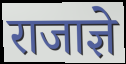
राजाज्ञे